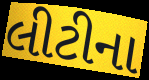
લીટીના